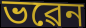
ভৱেন